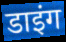
डाइंग